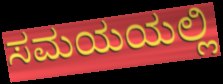
ಸಮಯಯಲ್ಲಿ